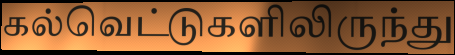
கல்வெட்டுகளிலிருந்து